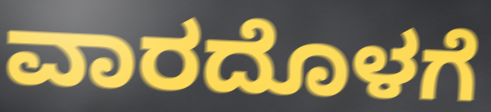
ವಾರದೊಳಗೆ